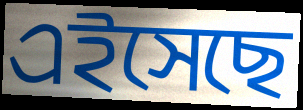
এইসেছে